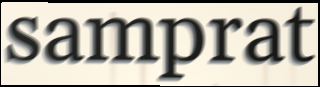
samprat